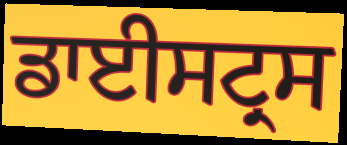
ਡਾਈਸਟ੍ਰਸ